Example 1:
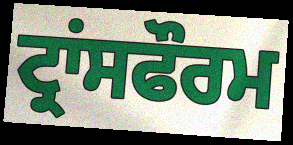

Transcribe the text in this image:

ਟ੍ਰਾਂਸਫੌਰਮ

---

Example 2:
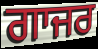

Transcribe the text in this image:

ਗਾਜਰ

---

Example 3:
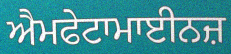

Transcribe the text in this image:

ਐਮਫੇਟਾਮਾਈਨਜ਼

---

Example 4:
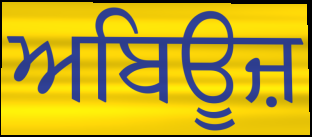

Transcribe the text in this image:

ਅਬਿਊਜ਼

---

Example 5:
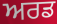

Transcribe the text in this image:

ਅਰਡ